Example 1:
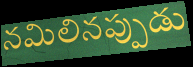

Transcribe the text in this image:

నమిలినప్పుడు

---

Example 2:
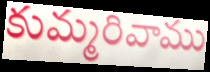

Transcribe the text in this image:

కుమ్మరివాము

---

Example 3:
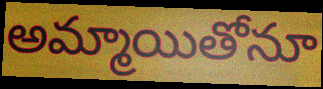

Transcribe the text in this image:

అమ్మాయితోనూ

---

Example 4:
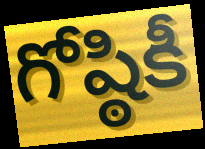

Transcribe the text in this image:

గోష్ఠికీ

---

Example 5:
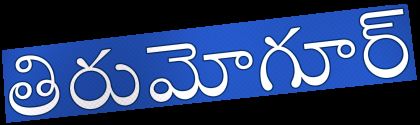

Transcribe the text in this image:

తిరుమోగూర్